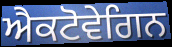
ਐਕਟੋਵੇਗਿਨ